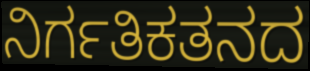
ನಿರ್ಗತಿಕತನದ